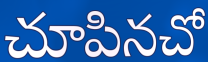
చూపినచో